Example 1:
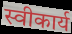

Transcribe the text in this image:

स्‍वीकार्य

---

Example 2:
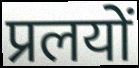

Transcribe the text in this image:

प्रलयों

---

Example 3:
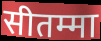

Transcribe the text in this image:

सीतम्मा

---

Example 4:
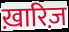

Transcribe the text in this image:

ख़ारिज़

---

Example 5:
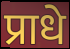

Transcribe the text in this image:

प्राधे